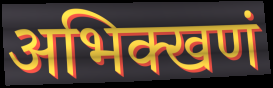
अभिक्खणं